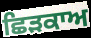
ਛਿੜਕਾਅ